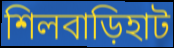
শিলবাড়িহাট